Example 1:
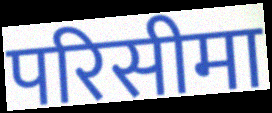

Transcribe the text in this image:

परिसीमा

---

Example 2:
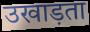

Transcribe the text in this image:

उखाड़ता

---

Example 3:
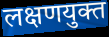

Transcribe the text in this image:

लक्षणयुक्त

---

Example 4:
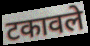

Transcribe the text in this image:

टकावले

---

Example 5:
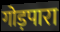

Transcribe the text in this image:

गोड़पारा